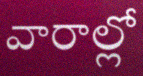
వారాల్లో